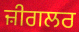
ਜ਼ੀਗਲਰ